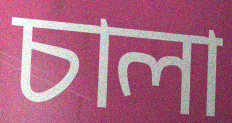
চালা